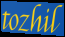
tozhil